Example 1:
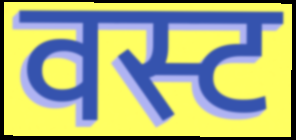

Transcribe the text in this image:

वस्ट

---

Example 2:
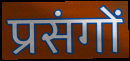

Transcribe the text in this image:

प्रसंगों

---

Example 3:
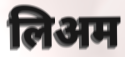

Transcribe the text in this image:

लिअम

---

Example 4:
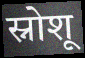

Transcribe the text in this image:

स्नोशू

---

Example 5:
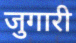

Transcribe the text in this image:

जुगारी